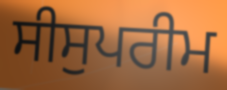
ਸੀਸੁਪਰੀਮ